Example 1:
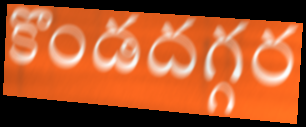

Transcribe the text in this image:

కొండదగ్గర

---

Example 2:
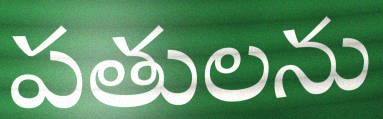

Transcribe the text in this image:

పతులను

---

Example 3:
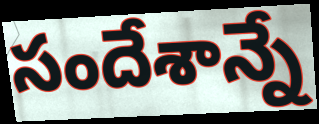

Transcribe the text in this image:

సందేశాన్నే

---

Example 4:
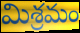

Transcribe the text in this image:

మిశ్రమం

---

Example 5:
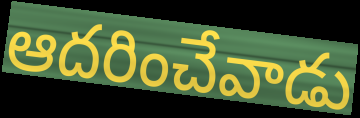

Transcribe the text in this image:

ఆదరించేవాడు